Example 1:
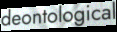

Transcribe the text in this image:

deontological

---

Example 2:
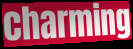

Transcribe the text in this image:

charming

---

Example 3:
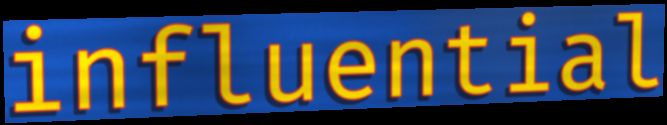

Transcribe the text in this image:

influential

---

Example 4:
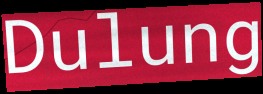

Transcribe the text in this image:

Dulung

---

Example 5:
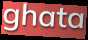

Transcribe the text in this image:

ghata